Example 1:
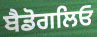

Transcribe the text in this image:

ਬੈਡੋਗਲਿਓ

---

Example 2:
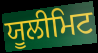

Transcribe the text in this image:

ਯੂਲੀਮਿਟ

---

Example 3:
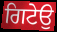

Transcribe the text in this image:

ਗਿਟੇਉ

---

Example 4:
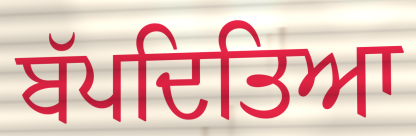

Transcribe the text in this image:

ਬੱਪਦਿਤਿਆ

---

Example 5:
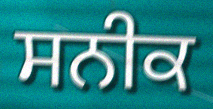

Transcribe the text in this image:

ਸਨੀਕ